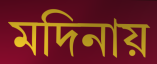
মদিনায়